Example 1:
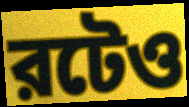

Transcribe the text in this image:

রটেও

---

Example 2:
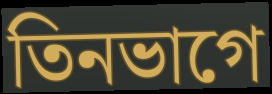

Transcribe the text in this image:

তিনভাগে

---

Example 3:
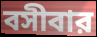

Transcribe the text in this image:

বসীবার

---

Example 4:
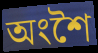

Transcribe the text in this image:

অংশৈ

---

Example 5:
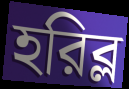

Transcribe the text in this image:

হরিব্ল